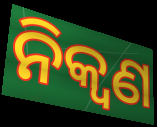
ନିକ୍ୱଣ